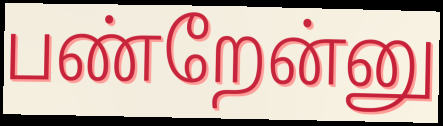
பண்றேன்னு